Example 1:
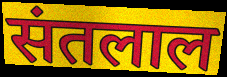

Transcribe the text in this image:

संतलाल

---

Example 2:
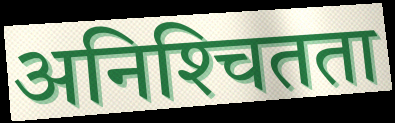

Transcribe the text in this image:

अनिश्‍चितता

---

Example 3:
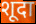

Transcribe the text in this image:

शूदा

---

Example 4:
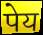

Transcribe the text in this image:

पेय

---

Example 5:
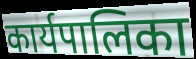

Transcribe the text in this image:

कार्यपालिका